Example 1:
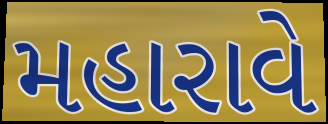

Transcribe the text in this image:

મહારાવે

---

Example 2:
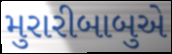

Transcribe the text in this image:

મુરારીબાબુએ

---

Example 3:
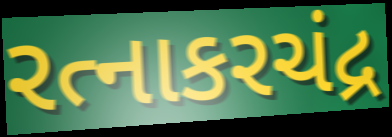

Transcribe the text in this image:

રત્નાકરચંદ્ર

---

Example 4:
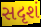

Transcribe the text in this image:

સદૃશં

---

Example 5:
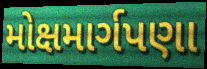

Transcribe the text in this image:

મોક્ષમાર્ગપણા